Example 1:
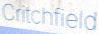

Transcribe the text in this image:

Critchfield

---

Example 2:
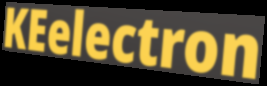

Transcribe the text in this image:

KEelectron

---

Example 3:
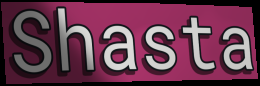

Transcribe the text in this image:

Shasta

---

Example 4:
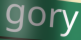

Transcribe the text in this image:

gory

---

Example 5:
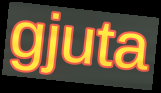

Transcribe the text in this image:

gjuta